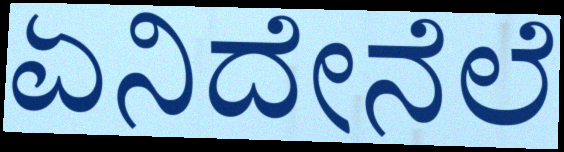
ಏನಿದೇನೆಲೆ